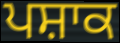
ਪਸ਼ਾਕ